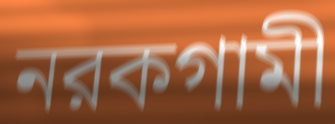
নরকগামী